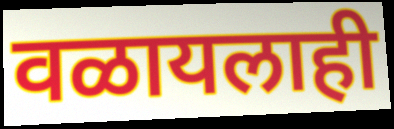
वळायलाही